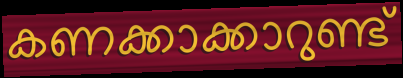
കണക്കാക്കാറുണ്ട്